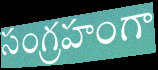
సంగ్రహంగా